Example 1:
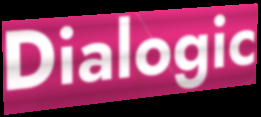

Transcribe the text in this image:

Dialogic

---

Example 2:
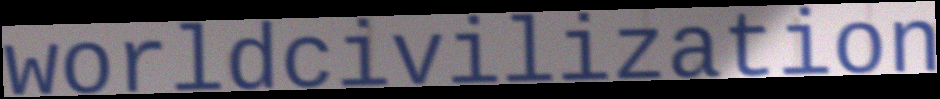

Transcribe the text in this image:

worldcivilization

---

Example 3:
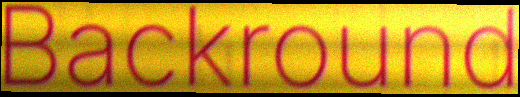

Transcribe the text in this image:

Backround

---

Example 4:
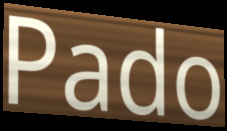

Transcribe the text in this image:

Pado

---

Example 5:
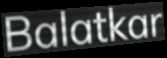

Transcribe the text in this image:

Balatkar